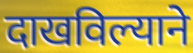
दाखविल्याने